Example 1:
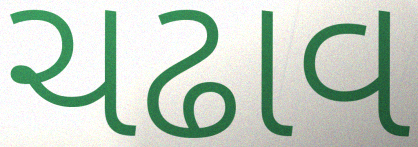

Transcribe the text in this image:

ચઢાવ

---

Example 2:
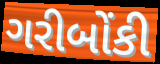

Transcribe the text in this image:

ગરીબોંકી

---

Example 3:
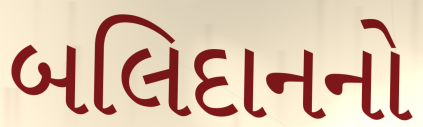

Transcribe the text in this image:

બલિદાનનો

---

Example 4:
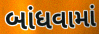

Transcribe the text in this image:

બાંધવામાં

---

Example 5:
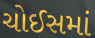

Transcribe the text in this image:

ચોઈસમાં